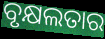
ବୃକ୍ଷଲତାର